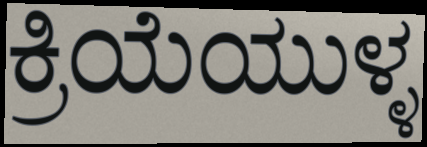
ಕ್ರಿಯೆಯುಳ್ಳ